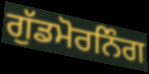
ਗੁੱਡਮੋਰਨਿੰਗ